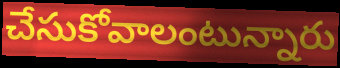
చేసుకోవాలంటున్నారు